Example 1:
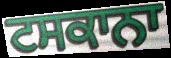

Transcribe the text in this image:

ਟਸਕਾਨਾ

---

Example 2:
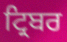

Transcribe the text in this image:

ਟ੍ਰਿਬਰ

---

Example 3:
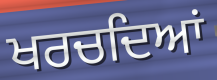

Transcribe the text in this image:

ਖਰਚਦਿਆਂ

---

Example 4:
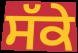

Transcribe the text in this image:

ਸੱਕੇ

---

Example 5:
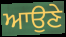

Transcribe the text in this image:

ਆਉਣੇ